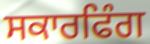
ਸਕਾਰਫਿੰਗ